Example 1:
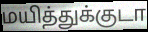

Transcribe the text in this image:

மயித்துக்குடா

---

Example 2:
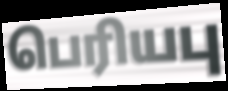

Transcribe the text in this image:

பெரியபு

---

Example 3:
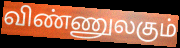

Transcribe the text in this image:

விண்ணுலகும்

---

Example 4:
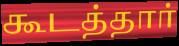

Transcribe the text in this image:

கூடத்தார்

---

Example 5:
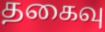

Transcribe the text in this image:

தகைவு